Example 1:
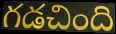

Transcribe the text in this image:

గడచింది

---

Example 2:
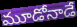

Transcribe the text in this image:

మూడోనాడే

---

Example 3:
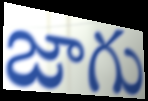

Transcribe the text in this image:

జాగు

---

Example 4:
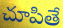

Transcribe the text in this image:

చూపితే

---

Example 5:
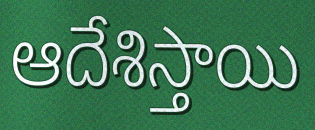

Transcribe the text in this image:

ఆదేశిస్తాయి